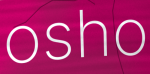
osho